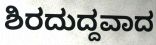
ಶಿರದುದ್ದವಾದ